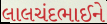
લાલચંદભાઈને